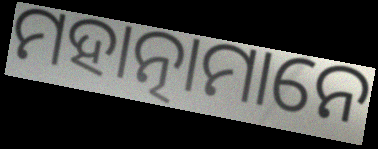
ମହାତ୍ନାମାନେ